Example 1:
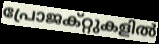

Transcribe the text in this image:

പ്രോജക്റ്റുകളിൽ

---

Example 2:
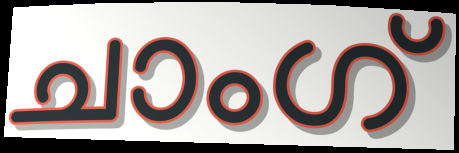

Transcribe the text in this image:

ചാംഗ്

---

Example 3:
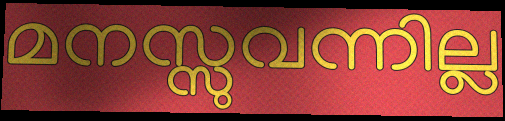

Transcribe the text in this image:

മനസ്സുവന്നില്ല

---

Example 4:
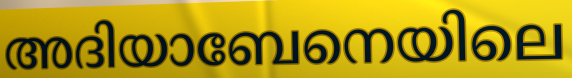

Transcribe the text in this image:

അദിയാബേനെയിലെ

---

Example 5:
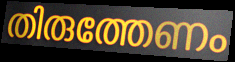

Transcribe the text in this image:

തിരുത്തേണം